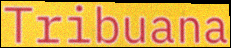
Tribuana